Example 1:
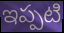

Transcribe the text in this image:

ఇప్పటి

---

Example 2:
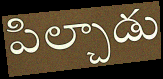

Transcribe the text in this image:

పిల్చాడు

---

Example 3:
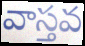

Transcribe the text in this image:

వాస్తవ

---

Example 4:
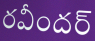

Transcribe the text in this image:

రవీందర్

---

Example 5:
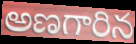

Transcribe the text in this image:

అణగారిన